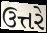
ઉત્તરે